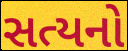
સત્યનો